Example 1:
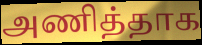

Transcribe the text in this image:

அணித்தாக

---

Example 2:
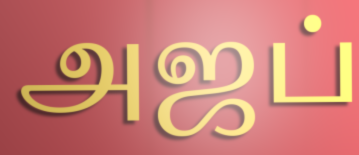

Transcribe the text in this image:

அஜப்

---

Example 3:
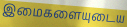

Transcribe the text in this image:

இமைகளையுடைய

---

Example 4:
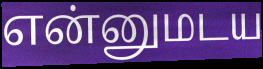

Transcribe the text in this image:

என்னுமடய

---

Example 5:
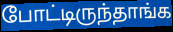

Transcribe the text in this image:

போட்டிருந்தாங்க